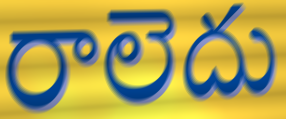
రాలెదు